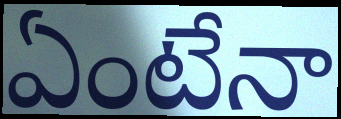
ఏంటేనా